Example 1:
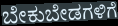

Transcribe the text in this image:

ಬೇಕುಬೇಡಗಳಿಗೆ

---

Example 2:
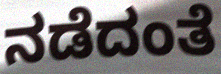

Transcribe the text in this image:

ನಡೆದಂತೆ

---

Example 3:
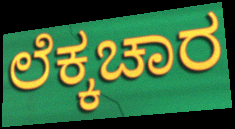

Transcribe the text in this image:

ಲೆಕ್ಕಚಾರ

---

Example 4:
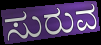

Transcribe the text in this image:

ಸುರುವ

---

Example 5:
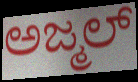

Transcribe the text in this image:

ಅಜ್ಮಲ್